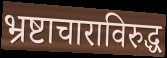
भ्रष्टाचाराविरुद्ध